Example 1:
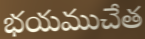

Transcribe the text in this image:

భయముచేత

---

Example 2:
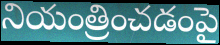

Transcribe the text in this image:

నియంత్రించడంపై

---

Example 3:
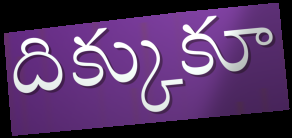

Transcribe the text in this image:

దిక్కుకూ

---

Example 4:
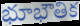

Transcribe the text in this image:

భూభౌతిక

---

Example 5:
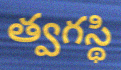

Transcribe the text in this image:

త్వగస్థి